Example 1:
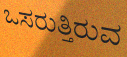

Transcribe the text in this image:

ಒಸರುತ್ತಿರುವ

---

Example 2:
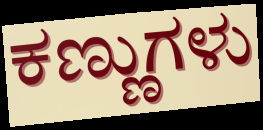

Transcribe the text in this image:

ಕಣ್ಣುಗಳು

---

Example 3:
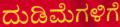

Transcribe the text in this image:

ದುಡಿಮೆಗಳಿಗೆ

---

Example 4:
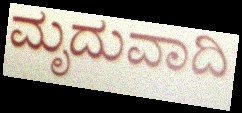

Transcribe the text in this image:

ಮೃದುವಾದಿ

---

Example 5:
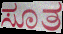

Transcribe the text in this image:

ಸೂತ